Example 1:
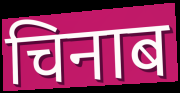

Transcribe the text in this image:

चिनाब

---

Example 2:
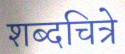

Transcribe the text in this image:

शब्दचित्रे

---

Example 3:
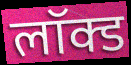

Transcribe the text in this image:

लॉक्ड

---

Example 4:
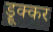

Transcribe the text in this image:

ड्रूक्कर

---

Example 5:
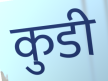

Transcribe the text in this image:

कुडी